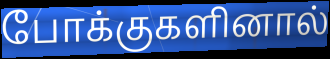
போக்குகளினால்